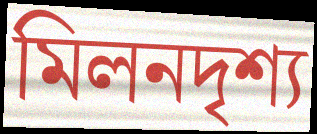
মিলনদৃশ্য